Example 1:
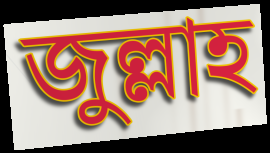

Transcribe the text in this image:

জুল্লাহ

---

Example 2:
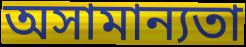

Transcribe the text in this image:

অসামান্যতা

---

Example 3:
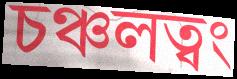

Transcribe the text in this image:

চঞ্চলত্বং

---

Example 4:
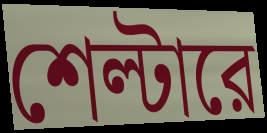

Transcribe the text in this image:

শেল্টারে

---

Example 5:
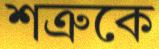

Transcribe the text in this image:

শত্রুকে